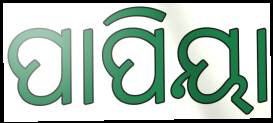
ପାପିୟା